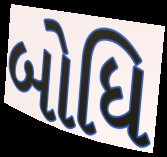
બોધિ